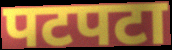
पटपटा